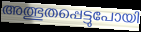
അത്ഭുതപ്പെട്ടുപോയി